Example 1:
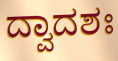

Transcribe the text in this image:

ದ್ವಾದಶಃ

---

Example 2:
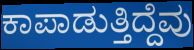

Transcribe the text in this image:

ಕಾಪಾಡುತ್ತಿದ್ದೆವು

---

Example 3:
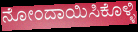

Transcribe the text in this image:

ನೋಂದಾಯಿಸಿಕೊಳ್ಳಿ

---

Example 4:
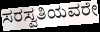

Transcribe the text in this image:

ಸರಸ್ವತಿಯವರೇ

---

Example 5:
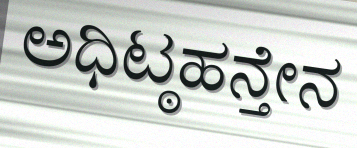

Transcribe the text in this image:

ಅಧಿಟ್ಠಹನ್ತೇನ